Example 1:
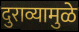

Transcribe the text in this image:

दुराव्यामुळे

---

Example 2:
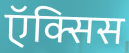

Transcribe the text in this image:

ऍक्सिस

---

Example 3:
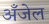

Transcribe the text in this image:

अँजेल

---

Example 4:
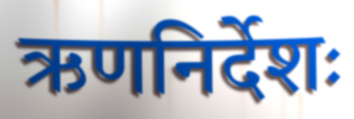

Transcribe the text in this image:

ऋणनिर्देशः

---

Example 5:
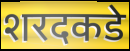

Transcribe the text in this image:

शरदकडे